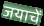
जयाचें